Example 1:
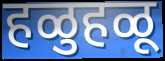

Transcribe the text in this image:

हळुहळू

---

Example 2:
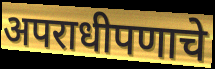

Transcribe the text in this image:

अपराधीपणाचे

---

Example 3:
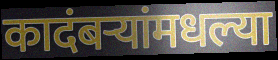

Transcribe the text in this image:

कादंबऱ्यांमधल्या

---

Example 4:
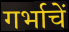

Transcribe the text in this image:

गर्भाचें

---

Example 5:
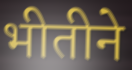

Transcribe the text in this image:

भीतीने